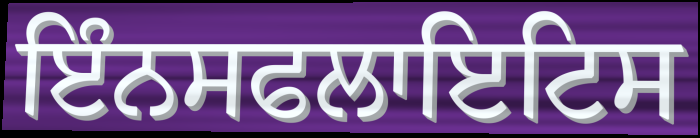
ਇੰਨਸਫਲਾਇਟਿਸ